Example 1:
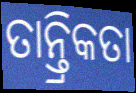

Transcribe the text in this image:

ତାନ୍ତ୍ରିକତା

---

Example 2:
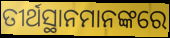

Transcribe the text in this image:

ତୀର୍ଥସ୍ଥାନମାନଙ୍କରେ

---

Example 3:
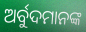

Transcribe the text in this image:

ଅର୍ବୁଦମାନଙ୍କ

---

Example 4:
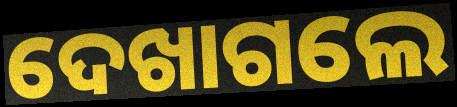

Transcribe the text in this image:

ଦେଖାଗଲେ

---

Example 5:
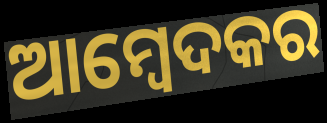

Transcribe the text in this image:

ଆମ୍ବେଦକର